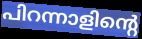
പിറന്നാളിന്റെ